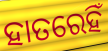
ହାତରେହିଁ